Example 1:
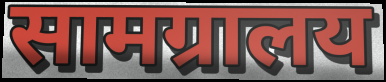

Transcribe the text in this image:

सामग्रालय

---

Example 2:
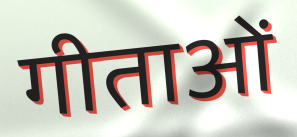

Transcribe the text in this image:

गीताओं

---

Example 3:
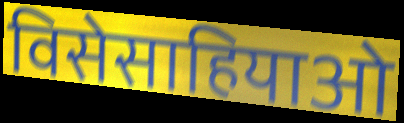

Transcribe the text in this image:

विसेसाहियाओ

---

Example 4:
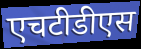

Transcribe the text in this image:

एचटीडीएस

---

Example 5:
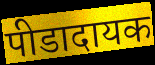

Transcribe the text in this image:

पीडादायक